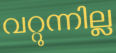
വറ്റുന്നില്ല